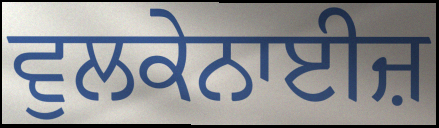
ਵੁਲਕੇਨਾਈਜ਼